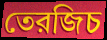
তেরজিচ